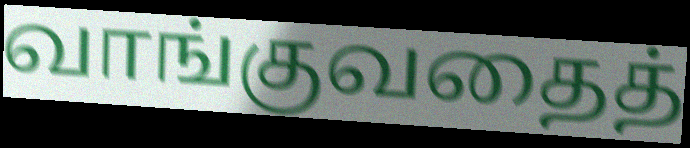
வாங்குவதைத்